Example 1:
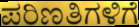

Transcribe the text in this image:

ಪರಿಣತಿಗಳಿಗೆ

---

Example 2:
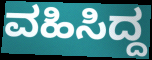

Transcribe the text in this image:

ವಹಿಸಿದ್ದ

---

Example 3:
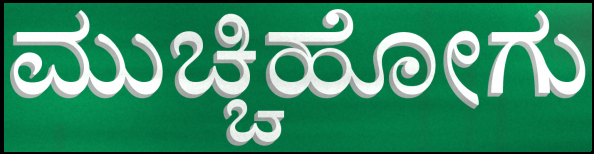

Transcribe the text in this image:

ಮುಚ್ಚಿಹೋಗು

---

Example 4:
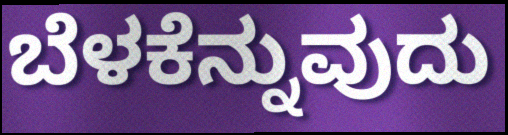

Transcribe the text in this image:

ಬೆಳಕೆನ್ನುವುದು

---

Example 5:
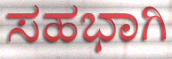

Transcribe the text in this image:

ಸಹಭಾಗಿ